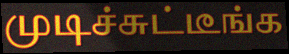
முடிச்சுட்டீங்க